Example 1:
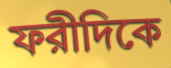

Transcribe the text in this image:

ফরীদিকে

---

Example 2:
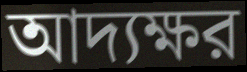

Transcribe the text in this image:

আদ্যক্ষর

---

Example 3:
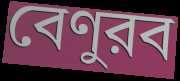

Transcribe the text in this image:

বেণুরব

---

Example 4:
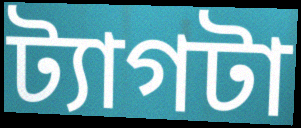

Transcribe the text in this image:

ট্যাগটা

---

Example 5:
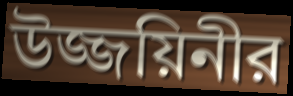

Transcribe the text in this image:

উজ্জয়িনীর